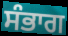
ਸੰਭਾਗ